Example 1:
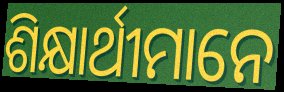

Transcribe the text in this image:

ଶିକ୍ଷାର୍ଥୀମାନେ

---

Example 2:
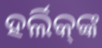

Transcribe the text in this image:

ହର୍ଲିକ୍‌ଙ୍କ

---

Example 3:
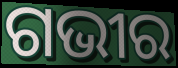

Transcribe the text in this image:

ଗଭୀର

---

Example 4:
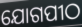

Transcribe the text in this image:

ଯୋଗପୀଠ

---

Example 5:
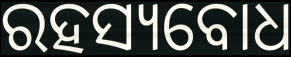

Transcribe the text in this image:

ରହସ୍ୟବୋଧ